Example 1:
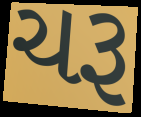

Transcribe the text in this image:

ચરૂ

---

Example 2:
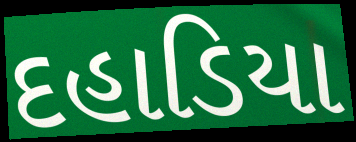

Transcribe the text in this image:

દહાડિયા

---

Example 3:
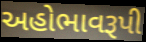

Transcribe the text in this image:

અહોભાવરૂપી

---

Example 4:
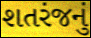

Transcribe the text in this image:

શતરંજનું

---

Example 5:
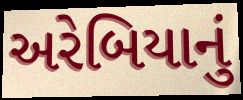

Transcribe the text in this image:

અરેબિયાનું